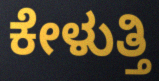
ಕೇಳುತ್ತಿ